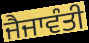
ਜੈਜਾਵੰਤੀ